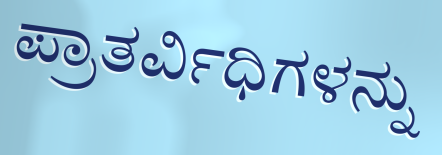
ಪ್ರಾತರ್ವಿಧಿಗಳನ್ನು